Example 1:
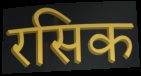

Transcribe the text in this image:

रसिक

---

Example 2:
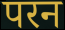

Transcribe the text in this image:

परन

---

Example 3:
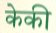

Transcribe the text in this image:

केकी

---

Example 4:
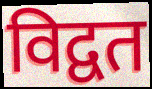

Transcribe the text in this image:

विद्वत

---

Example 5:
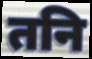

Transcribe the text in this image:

तनि